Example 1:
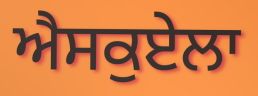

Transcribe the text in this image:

ਐਸਕੁਏਲਾ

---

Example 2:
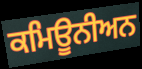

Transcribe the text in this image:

ਕਮਿਊਨੀਅਨ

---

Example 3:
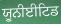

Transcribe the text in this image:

ਯੂਨੀਈਟਿਡ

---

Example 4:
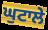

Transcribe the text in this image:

ਘੁਟਾਲੇ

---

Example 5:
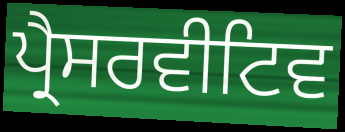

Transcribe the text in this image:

ਪ੍ਰੈਸਰਵੀਟਿਵ